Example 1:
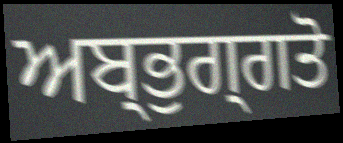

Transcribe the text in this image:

ਅਬ੍ਭੁਗ੍ਗਤੋ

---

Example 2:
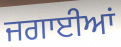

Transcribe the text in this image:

ਜਗਾਈਆਂ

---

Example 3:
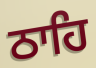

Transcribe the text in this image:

ਠਾਹਿ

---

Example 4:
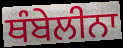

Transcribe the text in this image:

ਥੰਬੇਲੀਨਾ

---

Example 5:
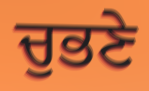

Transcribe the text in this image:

ਚੁਭਣੇ